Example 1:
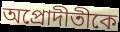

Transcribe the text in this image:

অপ্রোদীতীকে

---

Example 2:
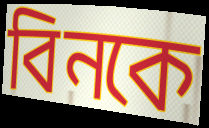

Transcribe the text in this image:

বিনকে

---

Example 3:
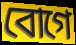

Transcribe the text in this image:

বোগে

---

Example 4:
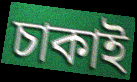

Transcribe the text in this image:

চাকাই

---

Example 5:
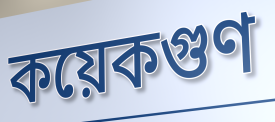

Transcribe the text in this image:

কয়েকগুণ